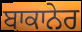
ਬਾਕਾਨੇਰ